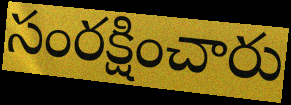
సంరక్షించారు